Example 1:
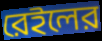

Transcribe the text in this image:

রেইলের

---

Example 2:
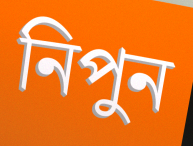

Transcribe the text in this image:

নিপুন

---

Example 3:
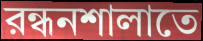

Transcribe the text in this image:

রন্ধনশালাতে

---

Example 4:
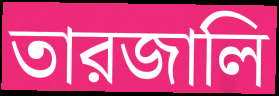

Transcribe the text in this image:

তারজালি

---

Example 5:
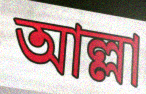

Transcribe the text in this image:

আল্লা